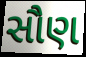
સૌણ